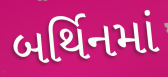
બર્થિનમાં